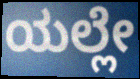
ಯಲ್ಲೇ